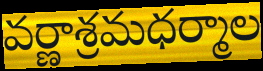
వర్ణాశ్రమధర్మాల